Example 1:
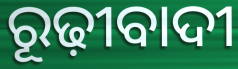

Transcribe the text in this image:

ରୂଢ଼ୀବାଦୀ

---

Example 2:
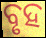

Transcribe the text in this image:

ବୃହ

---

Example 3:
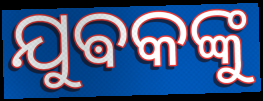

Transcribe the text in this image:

ଯୁଵକଙ୍କୁ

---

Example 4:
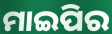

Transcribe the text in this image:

ମାଇପିର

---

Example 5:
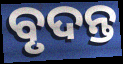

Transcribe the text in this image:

ବୃଦନ୍ତ